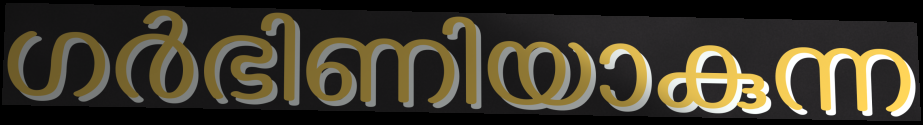
ഗർഭിണിയാകുന്ന